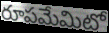
రూపమేమిటో